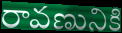
రావణునికి